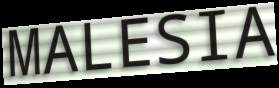
MALESIA